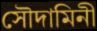
সৌদামিনী